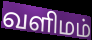
வளிமம்